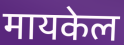
मायकेल